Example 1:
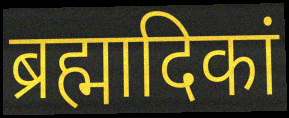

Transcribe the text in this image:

ब्रह्मादिकां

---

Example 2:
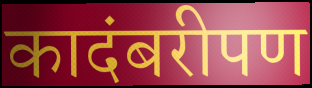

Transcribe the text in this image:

कादंबरीपण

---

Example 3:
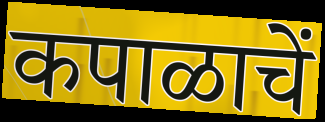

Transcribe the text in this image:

कपाळाचें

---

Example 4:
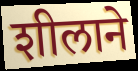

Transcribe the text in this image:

शीलाने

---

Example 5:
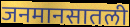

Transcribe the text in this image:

जनमानसातली